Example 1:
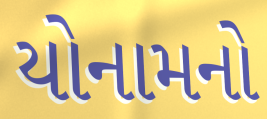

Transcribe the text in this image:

યોનામનો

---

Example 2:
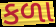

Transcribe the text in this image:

કળા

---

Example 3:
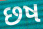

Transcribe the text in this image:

છષ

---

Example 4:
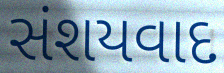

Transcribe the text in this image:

સંશયવાદ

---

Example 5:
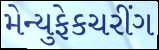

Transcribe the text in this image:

મેન્યુફેકચરીંગ